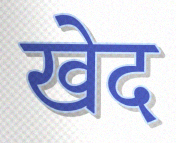
खेद